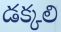
డక్కలి